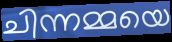
ചിന്നമ്മയെ